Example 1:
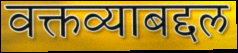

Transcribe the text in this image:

वक्तव्याबद्दल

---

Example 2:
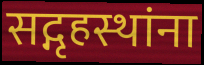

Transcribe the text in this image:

सद्गृहस्थांना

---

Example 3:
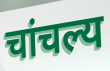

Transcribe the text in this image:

चांचल्य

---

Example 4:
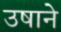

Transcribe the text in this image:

उषाने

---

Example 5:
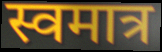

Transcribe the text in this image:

स्वमात्र